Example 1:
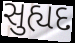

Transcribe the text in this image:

સુહ્યદ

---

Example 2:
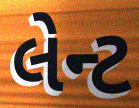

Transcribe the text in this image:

લેન્ટ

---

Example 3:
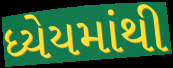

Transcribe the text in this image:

ધ્યેયમાંથી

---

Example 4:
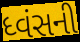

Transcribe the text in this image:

ધ્વંસની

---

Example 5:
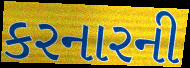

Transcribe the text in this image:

કરનારની